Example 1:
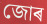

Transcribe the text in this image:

জোৰ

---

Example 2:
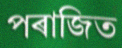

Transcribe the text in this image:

পৰাজিত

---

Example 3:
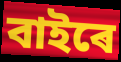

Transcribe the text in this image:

বাইৰে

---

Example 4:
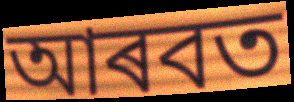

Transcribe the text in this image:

আৰবত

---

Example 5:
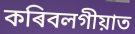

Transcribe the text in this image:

কৰিবলগীয়াত